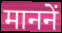
माननें